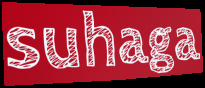
suhaga